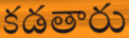
కడతారు